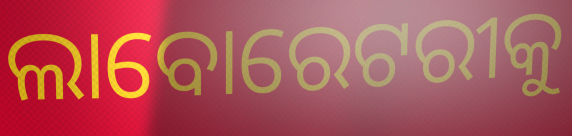
ଲାବୋରେଟରୀକୁ